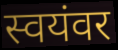
स्वयंवर